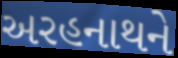
અરહનાથને